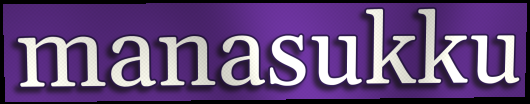
manasukku